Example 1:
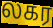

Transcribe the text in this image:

லகர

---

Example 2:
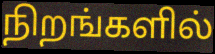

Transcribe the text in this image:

நிறங்களில்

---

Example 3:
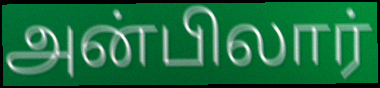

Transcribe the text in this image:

அன்பிலார்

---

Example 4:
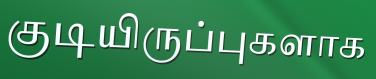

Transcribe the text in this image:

குடியிருப்புகளாக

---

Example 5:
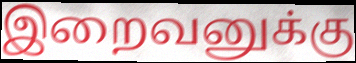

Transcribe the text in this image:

இறைவனுக்கு